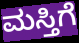
ಮಸ್ತಿಗೆ